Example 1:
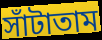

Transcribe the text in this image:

সাঁটাতাম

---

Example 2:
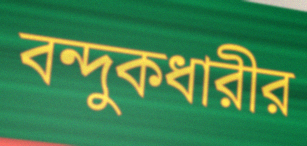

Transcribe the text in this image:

বন্দুকধারীর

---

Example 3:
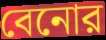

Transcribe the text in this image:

বেনোর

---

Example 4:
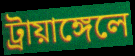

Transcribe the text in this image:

ট্রায়াঙ্গেলে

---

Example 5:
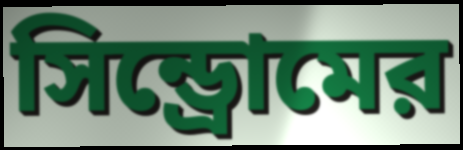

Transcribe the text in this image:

সিন্ড্রোমের